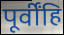
पूर्वींहि